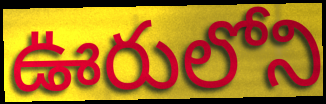
ఊరులోని